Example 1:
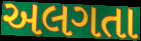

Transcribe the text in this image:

અલગતા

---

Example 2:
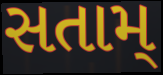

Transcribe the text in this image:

સતામ્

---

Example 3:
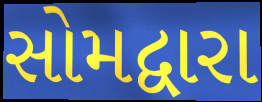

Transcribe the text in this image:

સોમદ્વારા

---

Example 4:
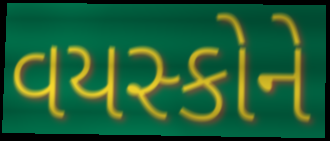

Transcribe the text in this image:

વયસ્કોને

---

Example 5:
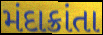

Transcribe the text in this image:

મંદાક્રાંતા